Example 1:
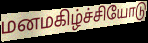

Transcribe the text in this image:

மனமகிழ்ச்சியோடு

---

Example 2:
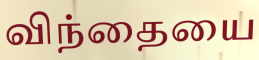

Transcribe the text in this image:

விந்தையை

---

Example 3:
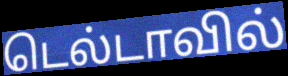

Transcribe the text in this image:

டெல்டாவில்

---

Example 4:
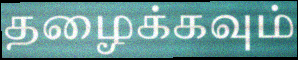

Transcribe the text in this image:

தழைக்கவும்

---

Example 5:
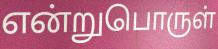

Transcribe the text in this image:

என்றுபொருள்